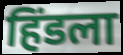
हिंडला